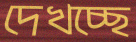
দেখচ্ছে